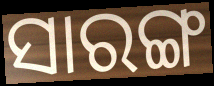
ସାରଙ୍ଗ